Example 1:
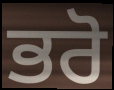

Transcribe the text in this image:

ਭਰੋ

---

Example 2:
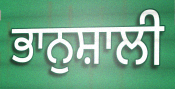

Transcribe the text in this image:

ਭਾਨੁਸ਼ਾਲੀ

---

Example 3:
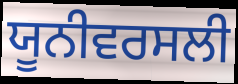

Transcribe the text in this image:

ਯੂਨੀਵਰਸਲੀ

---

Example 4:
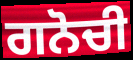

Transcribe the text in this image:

ਗਨੋਚੀ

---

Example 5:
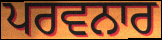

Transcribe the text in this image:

ਪਰਵਨਾਰ